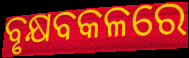
ବୃକ୍ଷବକଳରେ